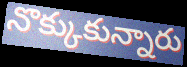
నొక్కుకున్నారు